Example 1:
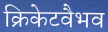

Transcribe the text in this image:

क्रिकेटवैभव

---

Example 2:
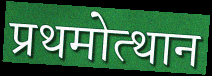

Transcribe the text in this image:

प्रथमोत्थान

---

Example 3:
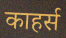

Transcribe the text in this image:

काहर्स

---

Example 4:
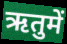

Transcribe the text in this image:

ऋतुमें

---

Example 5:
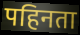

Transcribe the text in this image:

पहिनता